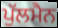
ਪੁੱਲਮੈਨ